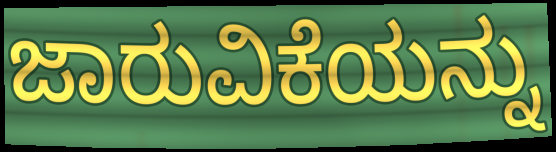
ಜಾರುವಿಕೆಯನ್ನು